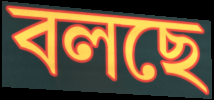
বলছে